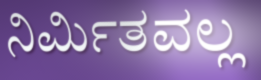
ನಿರ್ಮಿತವಲ್ಲ